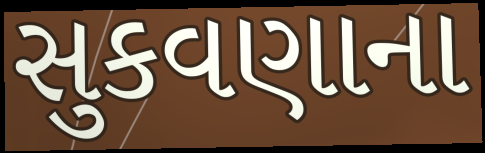
સુકવણાના